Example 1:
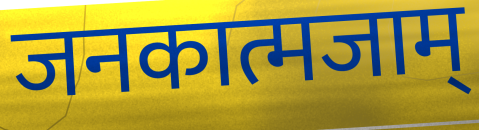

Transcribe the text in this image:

जनकात्मजाम्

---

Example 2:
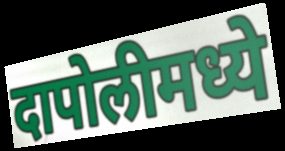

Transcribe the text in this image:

दापोलीमध्ये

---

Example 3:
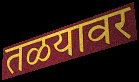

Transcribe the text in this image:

तळयावर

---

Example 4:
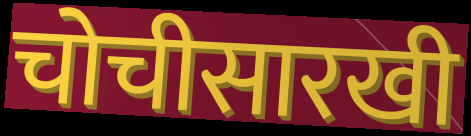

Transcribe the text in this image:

चोचीसारखी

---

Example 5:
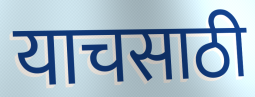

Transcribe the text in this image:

याचसाठी